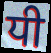
ਧੀ